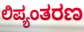
ಲಿಪ್ಯಂತರಣ